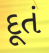
દૂતં